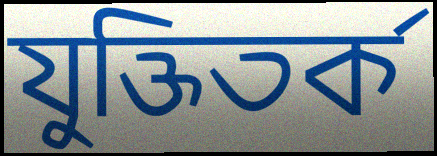
যুক্তিতর্ক